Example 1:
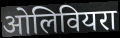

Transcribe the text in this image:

ओलिवियरा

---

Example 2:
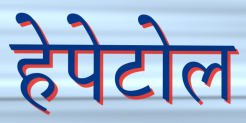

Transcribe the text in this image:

हेपेटोल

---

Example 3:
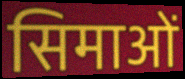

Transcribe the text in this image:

सिमाओं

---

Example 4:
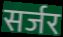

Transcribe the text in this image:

सर्जर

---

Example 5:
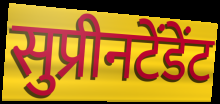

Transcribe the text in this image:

सुप्रीनटेंडेंट